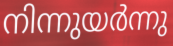
നിന്നുയർന്നു